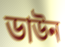
ডাউন